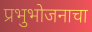
प्रभुभोजनाचा